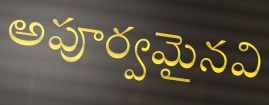
అపూర్వమైనవి